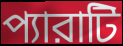
প্যারাটি